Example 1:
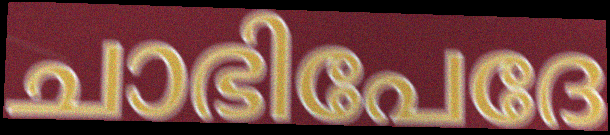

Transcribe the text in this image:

ചാഭിപേദേ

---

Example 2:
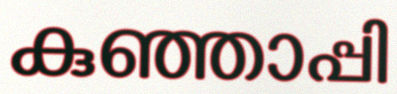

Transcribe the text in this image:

കുഞ്ഞാപ്പി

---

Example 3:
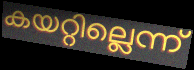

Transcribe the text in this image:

കയറ്റില്ലെന്ന്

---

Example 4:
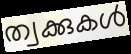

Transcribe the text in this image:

ത്വക്കുകൾ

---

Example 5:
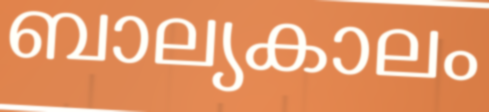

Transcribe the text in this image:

ബാല്യകാലം